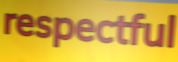
respectful